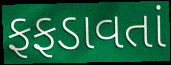
ફફડાવતાં